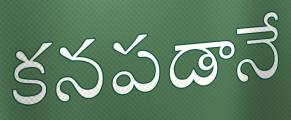
కనపడానే